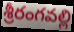
శ్రీరంగవల్లి